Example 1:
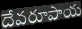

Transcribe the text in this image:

దేవరూపాయ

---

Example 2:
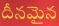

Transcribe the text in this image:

దీనమైన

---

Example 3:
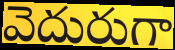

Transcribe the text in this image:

వెదురుగా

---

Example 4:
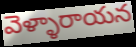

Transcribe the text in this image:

వెళ్ళారాయన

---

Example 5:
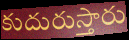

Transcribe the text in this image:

కుదురుస్తారు